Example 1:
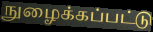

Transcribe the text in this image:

நுழைக்கப்பட்டு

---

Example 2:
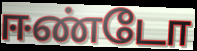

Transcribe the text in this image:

ஈண்டோ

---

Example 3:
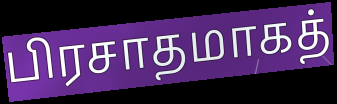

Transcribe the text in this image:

பிரசாதமாகத்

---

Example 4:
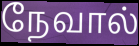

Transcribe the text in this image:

நேவால்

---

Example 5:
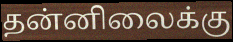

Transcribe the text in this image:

தன்னிலைக்கு